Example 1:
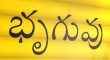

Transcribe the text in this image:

భృగువు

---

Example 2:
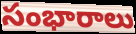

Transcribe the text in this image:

సంభారాలు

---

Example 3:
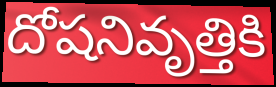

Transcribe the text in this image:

దోషనివృత్తికి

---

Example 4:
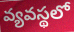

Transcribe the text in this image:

వ్యవస్థలో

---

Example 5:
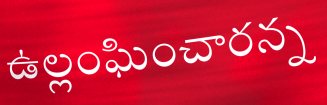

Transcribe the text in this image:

ఉల్లంఘించారన్న